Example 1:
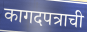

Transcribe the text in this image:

कागदपत्राची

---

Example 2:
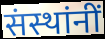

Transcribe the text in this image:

संस्थांनीं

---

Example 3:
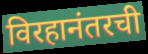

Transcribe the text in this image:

विरहानंतरची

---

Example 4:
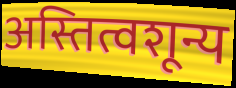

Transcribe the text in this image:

अस्तित्वशून्य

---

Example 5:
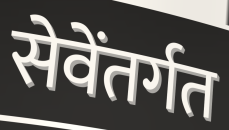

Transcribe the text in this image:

सेवेंतर्गत